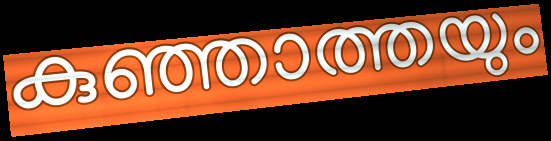
കുഞ്ഞാത്തയും